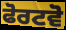
ਫੋਰਟਵੋ